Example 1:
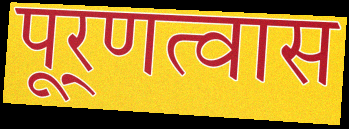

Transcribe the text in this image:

पूर्णत्वास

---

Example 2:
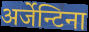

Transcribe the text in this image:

अर्जेन्टिना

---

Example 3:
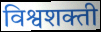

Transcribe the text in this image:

विश्वशक्ती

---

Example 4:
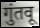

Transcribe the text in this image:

गुंतवू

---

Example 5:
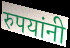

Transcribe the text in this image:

रुपयांनी